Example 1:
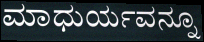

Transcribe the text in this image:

ಮಾಧುರ್ಯವನ್ನೂ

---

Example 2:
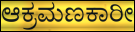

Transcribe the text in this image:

ಆಕ್ರಮಣಕಾರೀ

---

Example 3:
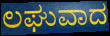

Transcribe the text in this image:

ಲಘುವಾದ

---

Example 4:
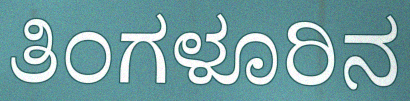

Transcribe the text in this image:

ತಿಂಗಳೂರಿನ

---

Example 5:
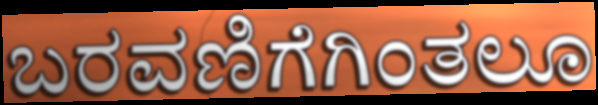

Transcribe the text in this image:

ಬರವಣಿಗೆಗಿಂತಲೂ